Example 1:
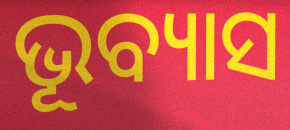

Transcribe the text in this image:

ଭୂବ୍ୟାସ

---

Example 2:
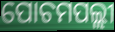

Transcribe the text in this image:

ପୋଚମପଲ୍ଲୀ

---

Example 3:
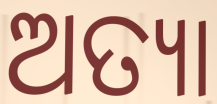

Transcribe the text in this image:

ଅତ୍ୟା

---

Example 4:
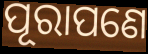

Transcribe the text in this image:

ପୂରାପଣେ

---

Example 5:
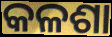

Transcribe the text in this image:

କଳଶା